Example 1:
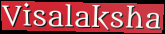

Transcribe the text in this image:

Visalaksha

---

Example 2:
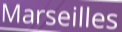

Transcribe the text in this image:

Marseilles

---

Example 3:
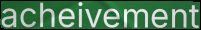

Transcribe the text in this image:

acheivement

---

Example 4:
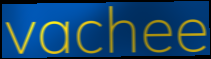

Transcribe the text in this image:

vachee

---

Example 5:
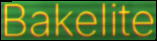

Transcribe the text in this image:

Bakelite